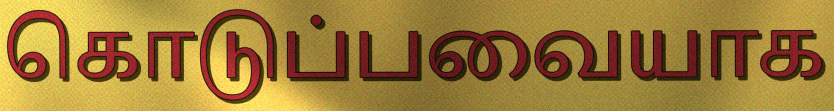
கொடுப்பவையாக